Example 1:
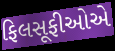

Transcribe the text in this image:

ફિલસૂફીઓએ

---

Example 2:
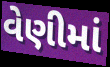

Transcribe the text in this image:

વેણીમાં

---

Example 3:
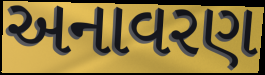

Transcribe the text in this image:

અનાવરણ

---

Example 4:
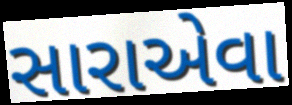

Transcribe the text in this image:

સારાએવા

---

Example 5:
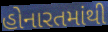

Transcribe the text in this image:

હોનારતમાંથી